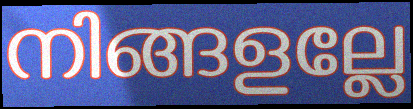
നിങ്ങളല്ലേ